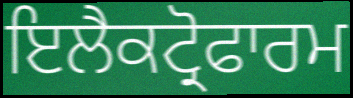
ਇਲੈਕਟ੍ਰੋਫਾਰਮ